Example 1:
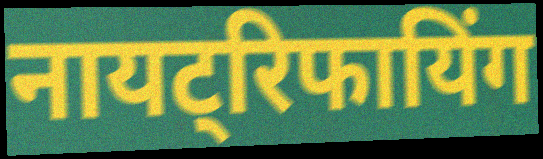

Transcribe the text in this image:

नायट्रिफायिंग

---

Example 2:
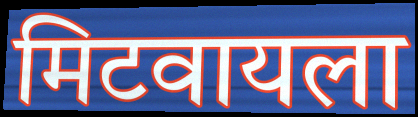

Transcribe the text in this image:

मिटवायला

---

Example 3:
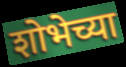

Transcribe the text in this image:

शोभेच्या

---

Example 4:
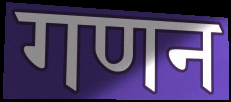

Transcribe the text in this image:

गणन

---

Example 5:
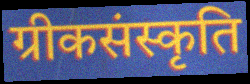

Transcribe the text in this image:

ग्रीकसंस्कृति